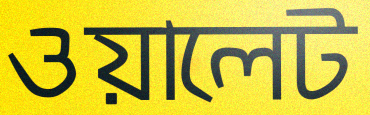
ওয়ালেট